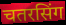
चतरसिंग